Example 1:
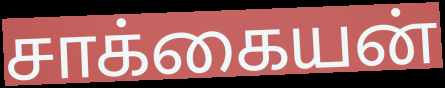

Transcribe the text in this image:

சாக்கையன்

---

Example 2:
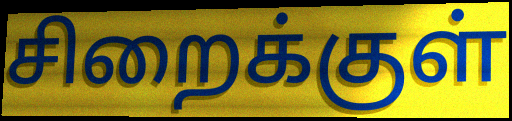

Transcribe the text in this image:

சிறைக்குள்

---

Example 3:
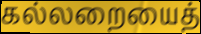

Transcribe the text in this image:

கல்லறையைத்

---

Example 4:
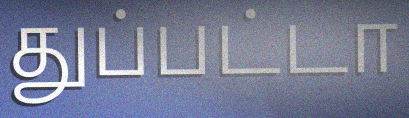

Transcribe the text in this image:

துப்பட்டா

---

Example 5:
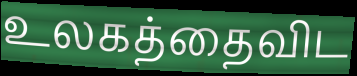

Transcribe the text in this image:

உலகத்தைவிட